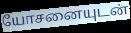
யோசனையுடன்